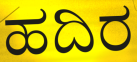
ಹದಿರ